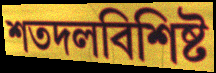
শতদলবিশিষ্ট